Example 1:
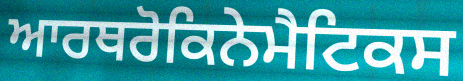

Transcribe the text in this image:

ਆਰਥਰੋਕਿਨੇਮੈਟਿਕਸ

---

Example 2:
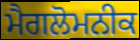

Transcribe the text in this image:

ਮੈਗਲੋਮਨੀਕ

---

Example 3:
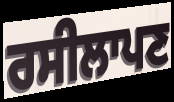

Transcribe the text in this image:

ਰਸੀਲਾਪਣ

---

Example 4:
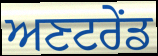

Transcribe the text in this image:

ਅਣਟਰੇਂਡ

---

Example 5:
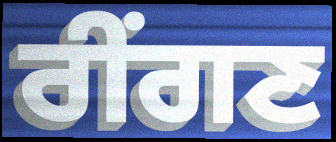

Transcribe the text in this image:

ਰੀਂਗਣ